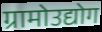
ग्रामोउद्योग